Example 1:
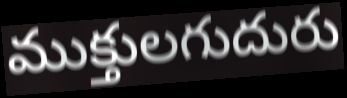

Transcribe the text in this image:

ముక్తులగుదురు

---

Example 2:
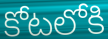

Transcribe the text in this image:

కోటలోకి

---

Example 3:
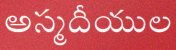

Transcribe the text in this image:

అస్మదీయుల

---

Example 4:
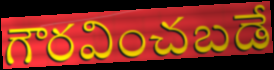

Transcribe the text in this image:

గౌరవించబడే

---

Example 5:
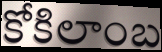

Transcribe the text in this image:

కోకిలాంబ